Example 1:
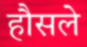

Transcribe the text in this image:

हौसले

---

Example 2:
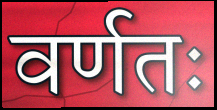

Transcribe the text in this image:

वर्णतः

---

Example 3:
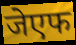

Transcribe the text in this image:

जेएफ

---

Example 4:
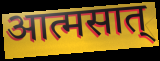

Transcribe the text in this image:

आत्मसात्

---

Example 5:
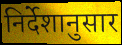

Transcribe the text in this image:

निर्देशानुसार